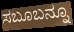
ಸಬೂಬನ್ನೂ